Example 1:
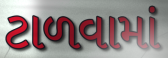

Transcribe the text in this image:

ટાળવામાં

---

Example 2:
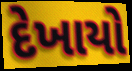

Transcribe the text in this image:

દેખાયો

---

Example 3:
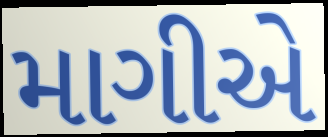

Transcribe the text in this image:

માગીએ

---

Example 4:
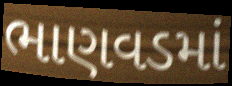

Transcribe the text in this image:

ભાણવડમાં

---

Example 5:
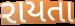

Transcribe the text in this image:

રાયતા